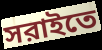
সরাইতে